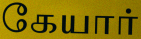
கேயார்